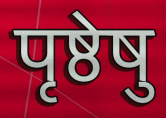
पृष्ठेषु